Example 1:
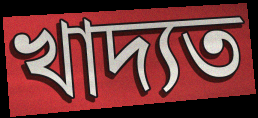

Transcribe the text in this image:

খাদ্যত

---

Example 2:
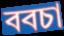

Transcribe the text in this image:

ববচা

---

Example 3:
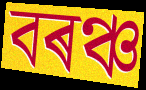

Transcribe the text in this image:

বৰঞ্চ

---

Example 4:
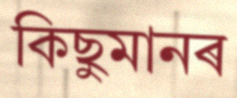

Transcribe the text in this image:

কিছুমানৰ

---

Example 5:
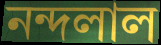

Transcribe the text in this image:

নন্দলাল